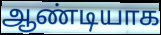
ஆண்டியாக